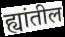
ह्यांतील